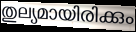
തുല്യമായിരിക്കും